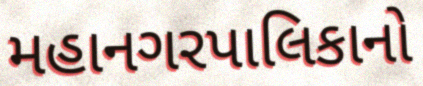
મહાનગરપાલિકાનો